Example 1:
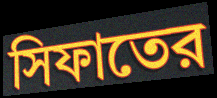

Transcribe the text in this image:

সিফাতের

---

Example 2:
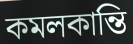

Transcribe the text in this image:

কমলকান্তি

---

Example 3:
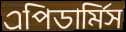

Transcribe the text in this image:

এপিডার্মিস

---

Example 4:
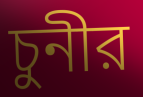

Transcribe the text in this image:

চুনীর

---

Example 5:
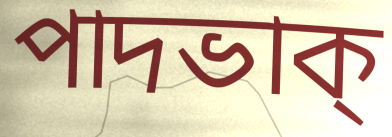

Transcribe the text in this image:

পাদভাক্